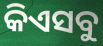
କିଏସବୁ